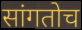
सांगतोच